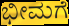
ಭೀಮಗೆ